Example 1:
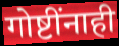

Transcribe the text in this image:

गोष्टींनाही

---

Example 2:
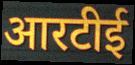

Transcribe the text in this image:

आरटीई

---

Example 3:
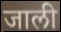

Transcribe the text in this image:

जाली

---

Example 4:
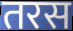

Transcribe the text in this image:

तरस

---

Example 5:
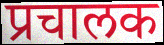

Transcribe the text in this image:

प्रचालक